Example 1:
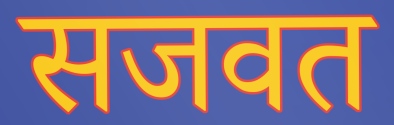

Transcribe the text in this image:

सजवत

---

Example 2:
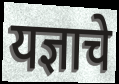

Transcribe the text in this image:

यज्ञाचे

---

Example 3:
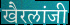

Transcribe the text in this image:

खैरलांजी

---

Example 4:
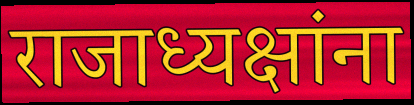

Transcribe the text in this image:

राजाध्यक्षांना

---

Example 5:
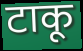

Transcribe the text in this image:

टाकू